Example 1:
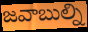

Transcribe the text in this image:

జవాబుల్ని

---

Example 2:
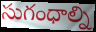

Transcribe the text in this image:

సుగంధాల్ని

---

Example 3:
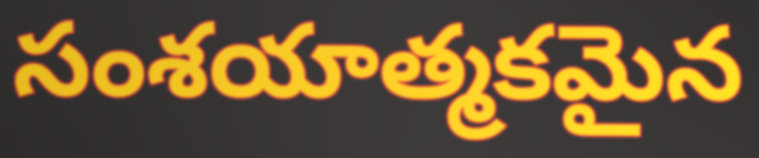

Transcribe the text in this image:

సంశయాత్మకమైన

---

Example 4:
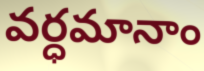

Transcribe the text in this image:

వర్ధమానాం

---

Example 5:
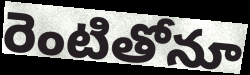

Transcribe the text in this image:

రెంటితోనూ